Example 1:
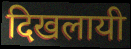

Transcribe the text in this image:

दिखलायी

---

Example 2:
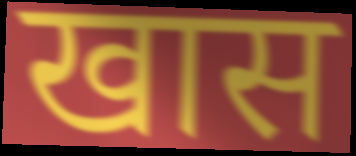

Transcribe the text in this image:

खास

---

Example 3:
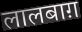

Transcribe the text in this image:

लालबाग़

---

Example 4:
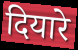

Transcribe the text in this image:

दियारे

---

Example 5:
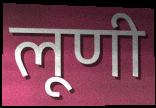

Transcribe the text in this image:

लूणी